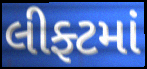
લીફ્ટમાં